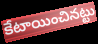
కేటాయించినట్టు